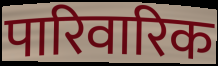
पारिवारिक